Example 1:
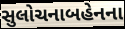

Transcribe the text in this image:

સુલોચનાબહેનના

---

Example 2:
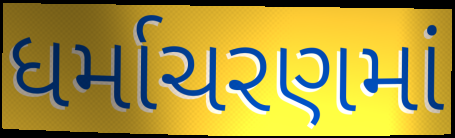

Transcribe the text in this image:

ધર્માચરણમાં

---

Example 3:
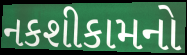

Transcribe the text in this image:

નકશીકામનો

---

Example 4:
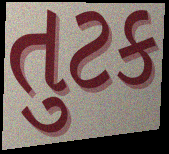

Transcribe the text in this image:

તુટક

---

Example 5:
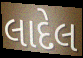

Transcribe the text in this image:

લાદેલ